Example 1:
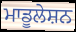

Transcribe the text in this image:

ਮਾਡੂਲੇਸ਼ਨ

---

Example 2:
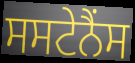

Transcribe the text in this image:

ਸਸਟੇਨੈਂਸ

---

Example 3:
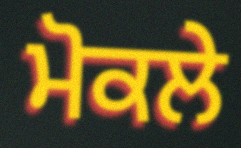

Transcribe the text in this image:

ਮੋਕਲੇ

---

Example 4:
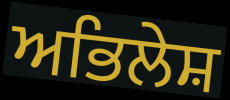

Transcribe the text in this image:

ਅਭਿਲੇਸ਼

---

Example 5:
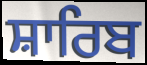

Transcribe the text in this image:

ਸ਼ਾਰਿਬ